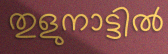
തുളുനാട്ടിൽ